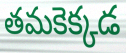
తమకెక్కడ